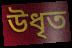
উধৃত